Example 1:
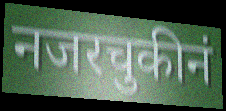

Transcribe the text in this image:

नजरचुकीनं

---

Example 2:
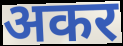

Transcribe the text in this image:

अकर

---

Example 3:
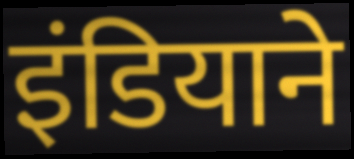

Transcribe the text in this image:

इंडियाने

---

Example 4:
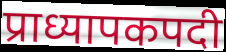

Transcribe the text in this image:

प्राध्यापकपदी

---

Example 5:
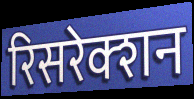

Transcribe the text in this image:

रिसरेक्शन